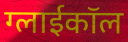
ग्लाईकॉल